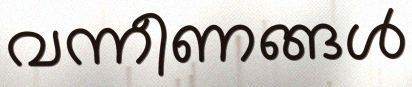
വന്നീണങ്ങൾ